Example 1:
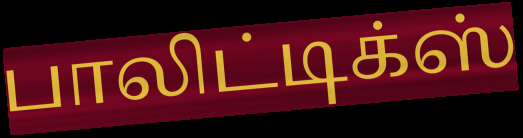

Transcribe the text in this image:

பாலிட்டிக்ஸ்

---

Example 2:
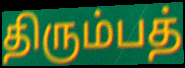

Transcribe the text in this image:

திரும்பத்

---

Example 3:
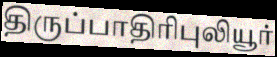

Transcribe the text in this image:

திருப்பாதிரிபுலியூர்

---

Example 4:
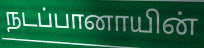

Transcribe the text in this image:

நடப்பானாயின்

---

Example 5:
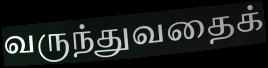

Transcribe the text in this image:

வருந்துவதைக்